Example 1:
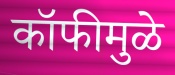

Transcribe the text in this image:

कॉफीमुळे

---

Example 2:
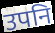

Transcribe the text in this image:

उपनि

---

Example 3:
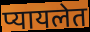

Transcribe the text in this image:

प्यायलेत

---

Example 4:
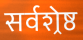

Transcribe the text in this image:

सर्वश्रेष्ठ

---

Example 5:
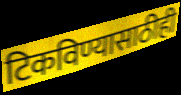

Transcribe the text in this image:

टिकविण्यासाठीही